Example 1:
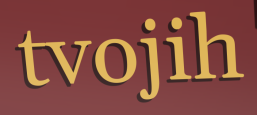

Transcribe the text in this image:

tvojih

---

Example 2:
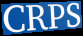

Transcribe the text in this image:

CRPS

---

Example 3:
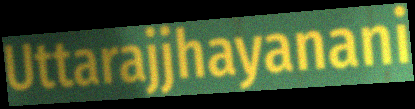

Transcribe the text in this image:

Uttarajjhayanani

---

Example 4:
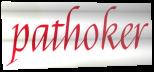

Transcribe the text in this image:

pathoker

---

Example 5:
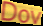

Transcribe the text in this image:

Dov